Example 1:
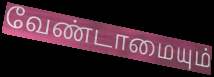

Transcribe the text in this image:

வேண்டாமையும்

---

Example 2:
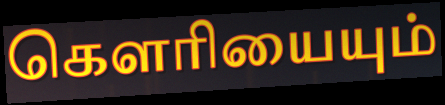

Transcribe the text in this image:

கௌரியையும்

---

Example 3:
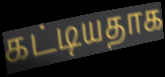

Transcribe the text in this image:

கட்டியதாக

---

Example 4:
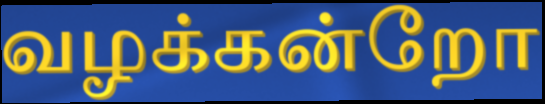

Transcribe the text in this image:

வழக்கன்றோ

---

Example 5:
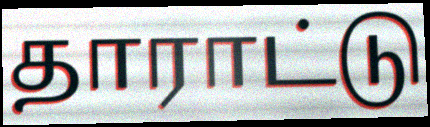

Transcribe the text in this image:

தாராட்டு